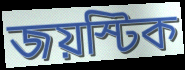
জয়স্টিক